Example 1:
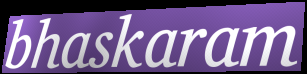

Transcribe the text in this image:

bhaskaram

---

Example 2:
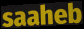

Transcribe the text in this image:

saaheb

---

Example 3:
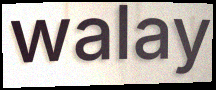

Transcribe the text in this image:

walay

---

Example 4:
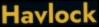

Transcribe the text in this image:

Havlock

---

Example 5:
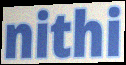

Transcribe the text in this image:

nithi